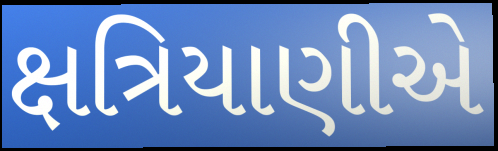
ક્ષત્રિયાણીએ